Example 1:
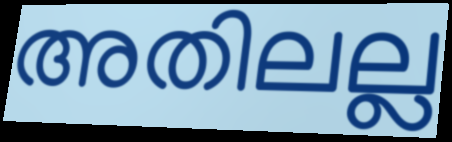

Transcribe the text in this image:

അതിലല്ല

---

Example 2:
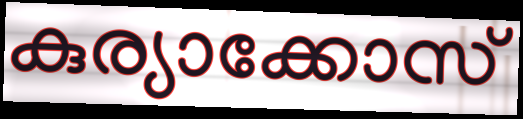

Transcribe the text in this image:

കുര്യാക്കോസ്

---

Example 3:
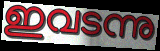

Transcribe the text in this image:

ഇവടന്നു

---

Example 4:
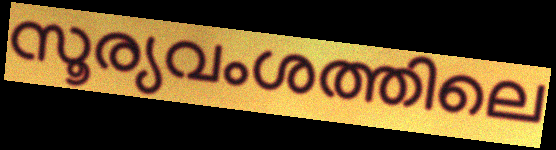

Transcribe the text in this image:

സൂര്യവംശത്തിലെ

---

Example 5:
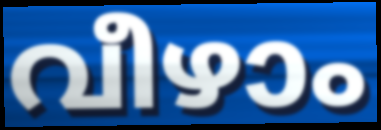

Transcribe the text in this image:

വീഴാം